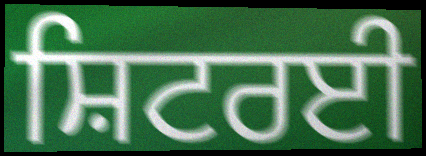
ਸ਼ਿਟਰਈ